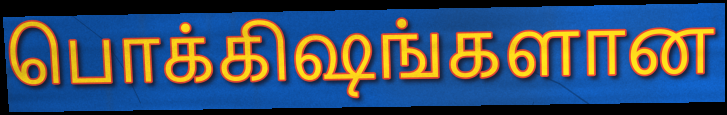
பொக்கிஷங்களான